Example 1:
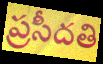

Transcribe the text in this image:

ప్రసీదతి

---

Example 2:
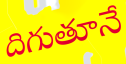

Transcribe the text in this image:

దిగుతూనే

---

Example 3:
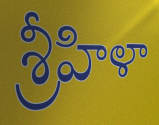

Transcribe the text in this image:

శ్రీహిళా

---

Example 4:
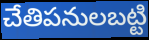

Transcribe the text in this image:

చేతిపనులబట్టి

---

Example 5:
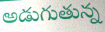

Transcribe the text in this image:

అడుగుతున్న